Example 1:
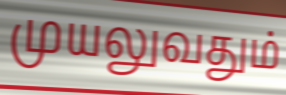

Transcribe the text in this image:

முயலுவதும்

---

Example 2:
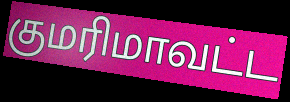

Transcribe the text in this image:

குமரிமாவட்ட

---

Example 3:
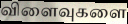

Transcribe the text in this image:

விளைவுகளை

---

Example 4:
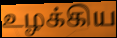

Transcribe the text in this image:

உழக்கிய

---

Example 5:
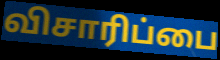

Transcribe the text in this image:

விசாரிப்பை